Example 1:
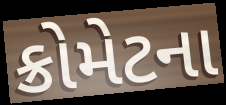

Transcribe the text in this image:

ક્રોમેટના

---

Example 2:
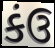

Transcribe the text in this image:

કંઉ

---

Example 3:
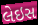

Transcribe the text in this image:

લેઇસ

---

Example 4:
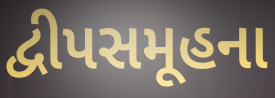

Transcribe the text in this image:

દ્વીપસમૂહના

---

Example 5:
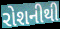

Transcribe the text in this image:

રોશનીથી